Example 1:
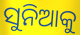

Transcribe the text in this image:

ସୁନିଆକୁ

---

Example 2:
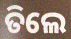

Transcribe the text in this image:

ତିଲେ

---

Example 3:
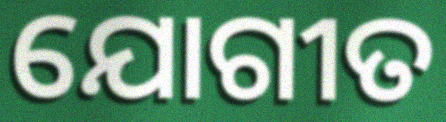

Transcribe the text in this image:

ଯୋଗୀତ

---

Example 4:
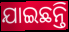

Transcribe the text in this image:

ଯାଇଛନ୍ତି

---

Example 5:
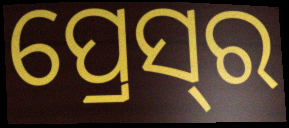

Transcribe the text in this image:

ପ୍ରେସ୍‌ର